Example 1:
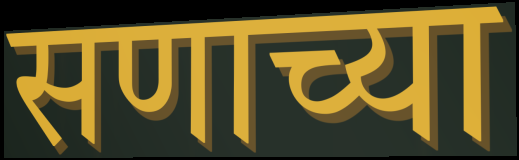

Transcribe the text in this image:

सणाच्या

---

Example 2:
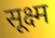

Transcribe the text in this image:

सूक्ष्म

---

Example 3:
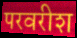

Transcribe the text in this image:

परवरीश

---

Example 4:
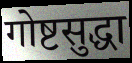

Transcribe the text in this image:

गोष्टसुद्धा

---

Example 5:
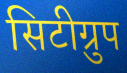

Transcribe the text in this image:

सिटीग्रुप